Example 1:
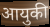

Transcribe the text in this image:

आयुकी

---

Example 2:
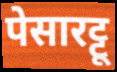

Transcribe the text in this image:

पेसारट्टू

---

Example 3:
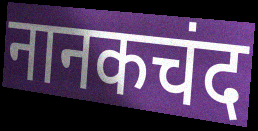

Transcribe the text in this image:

नानकचंद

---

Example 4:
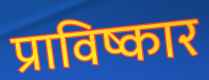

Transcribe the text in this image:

प्राविष्कार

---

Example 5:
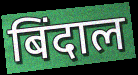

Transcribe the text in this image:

बिंदाल